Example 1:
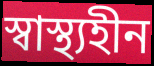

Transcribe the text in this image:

স্বাস্থ্যহীন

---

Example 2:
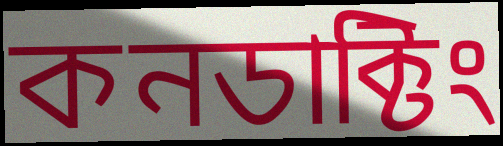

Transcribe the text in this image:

কনডাক্টিং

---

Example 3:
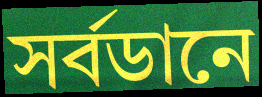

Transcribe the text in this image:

সর্বডানে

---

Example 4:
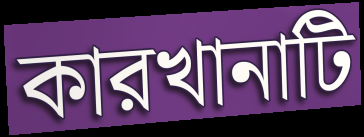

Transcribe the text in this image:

কারখানাটি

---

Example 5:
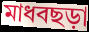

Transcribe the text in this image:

মাধবছড়া